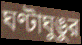
ঘণ্টাঘুঙুর